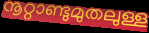
നൂറ്റാണ്ടുമുതലുള്ള